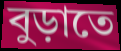
বুড়াতে